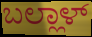
ಬಲ್ಲಾಳ್